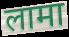
लामा